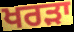
ਖਰੜਾ